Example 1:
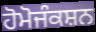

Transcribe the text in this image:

ਹੋਮੋਜੰਕਸ਼ਨ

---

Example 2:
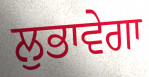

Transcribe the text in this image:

ਲੁਭਾਵੇਗਾ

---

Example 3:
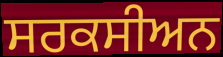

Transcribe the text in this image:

ਸਰਕਸੀਅਨ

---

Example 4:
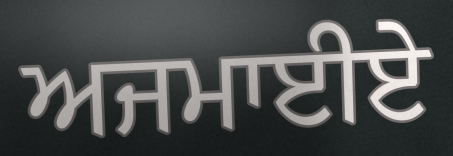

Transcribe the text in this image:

ਅਜਮਾਈਏ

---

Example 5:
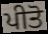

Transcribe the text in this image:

ਪੀਤੋ